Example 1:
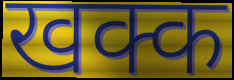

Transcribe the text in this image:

खक्क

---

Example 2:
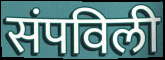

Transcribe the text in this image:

संपविली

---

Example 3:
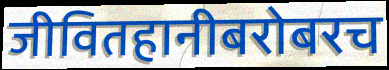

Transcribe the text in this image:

जीवितहानीबरोबरच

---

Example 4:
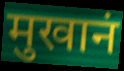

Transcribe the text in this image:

मुखानं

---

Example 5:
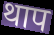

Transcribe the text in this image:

थाप